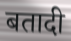
बतादी